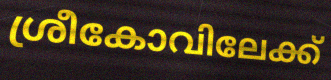
ശ്രീകോവിലേക്ക്